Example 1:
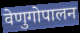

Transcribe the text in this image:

वेणुगोपालन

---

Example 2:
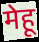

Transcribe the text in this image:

मेहू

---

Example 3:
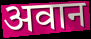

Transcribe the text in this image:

अवान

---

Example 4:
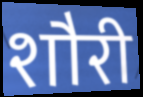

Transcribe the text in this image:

शौरी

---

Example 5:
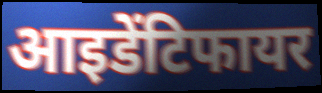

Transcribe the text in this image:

आइडेंटिफायर